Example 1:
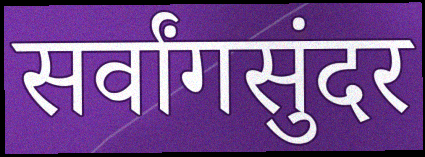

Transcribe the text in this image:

सर्वांगसुंदर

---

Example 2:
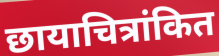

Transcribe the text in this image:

छायाचित्रांकित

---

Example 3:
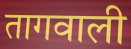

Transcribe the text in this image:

तागवाली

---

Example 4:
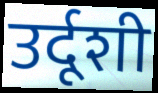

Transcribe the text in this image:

उर्दूशी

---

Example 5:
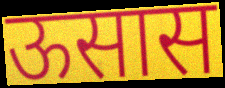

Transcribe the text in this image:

ऊसास